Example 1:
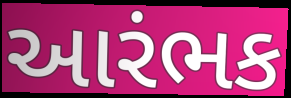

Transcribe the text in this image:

આરંભક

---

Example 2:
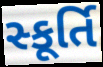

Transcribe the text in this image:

સ્કૂર્તિ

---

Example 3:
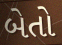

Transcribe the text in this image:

બેતો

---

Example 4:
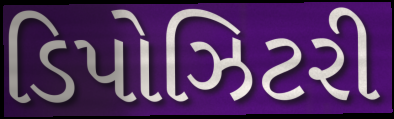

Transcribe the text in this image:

ડિપોઝિટરી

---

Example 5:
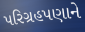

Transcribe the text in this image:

પરિગ્રહપણાને